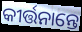
କୀର୍ତ୍ତନାନ୍ତେ